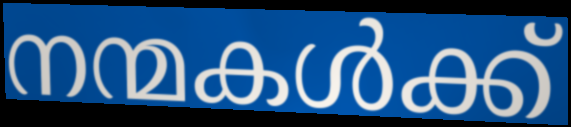
നന്മകൾക്ക്